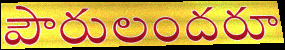
పౌరులందరూ